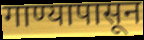
गाण्यापासून